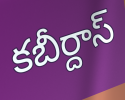
కబీర్దాస్